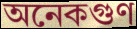
অনেকগুণ